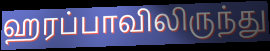
ஹரப்பாவிலிருந்து